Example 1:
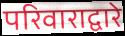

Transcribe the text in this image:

परिवाराद्वारे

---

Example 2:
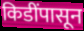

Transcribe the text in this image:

किडींपासून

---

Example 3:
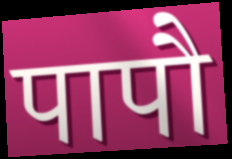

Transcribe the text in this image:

पापौ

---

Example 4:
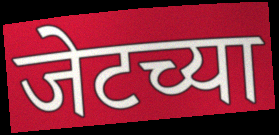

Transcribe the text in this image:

जेटच्या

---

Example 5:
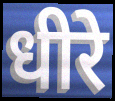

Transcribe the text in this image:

धीरे